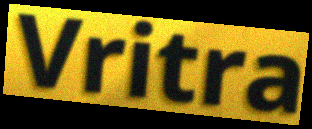
Vritra